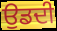
ਉਡਦੀ